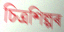
চিত্ৰশিল্পৰ